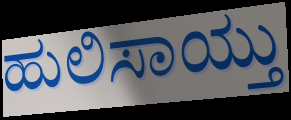
ಹುಲಿಸಾಯ್ತು